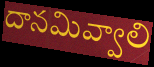
దానమివ్వాలి